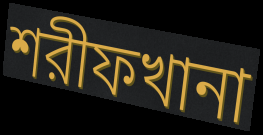
শরীফখানা